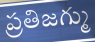
ప్రతిజగ్ము